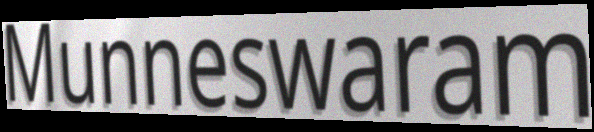
Munneswaram